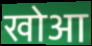
खोआ